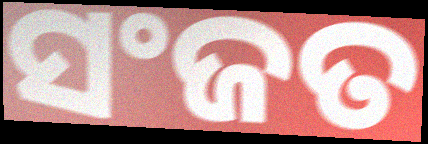
ସଂଜତ